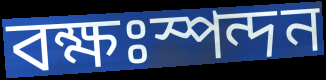
বক্ষঃস্পন্দন